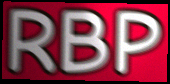
RBP